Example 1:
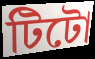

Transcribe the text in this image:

টিটো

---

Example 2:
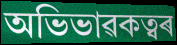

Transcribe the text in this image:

অভিভাৱকত্বৰ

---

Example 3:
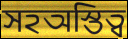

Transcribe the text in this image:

সহঅস্তিত্ব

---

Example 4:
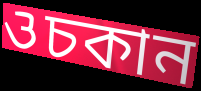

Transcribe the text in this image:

ওচকান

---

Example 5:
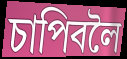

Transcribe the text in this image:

চাপিবলৈ